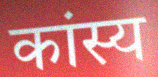
कांस्‍य